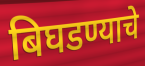
बिघडण्याचे